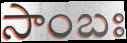
సాంబః